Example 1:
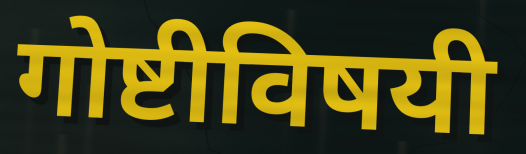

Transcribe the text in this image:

गोष्टीविषयी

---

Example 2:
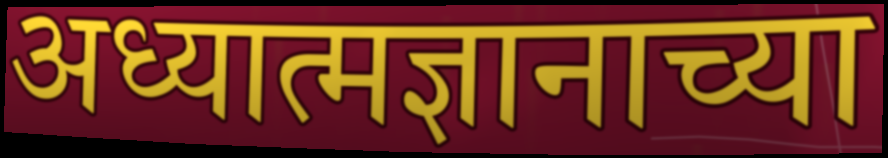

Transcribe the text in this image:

अध्यात्मज्ञानाच्या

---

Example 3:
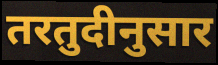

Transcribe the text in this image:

तरतुदीनुसार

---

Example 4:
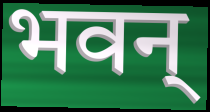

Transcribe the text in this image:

भवन्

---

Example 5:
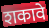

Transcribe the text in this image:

शकावे